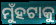
ମୁଁହଟାକୁ